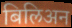
बिलिअन